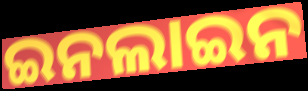
ଇନଲାଇନ